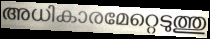
അധികാരമേറ്റെടുത്തു